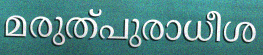
മരുത്പുരാധീശ